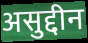
असुद्दीन